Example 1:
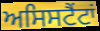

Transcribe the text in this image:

ਅਸਿਸਟੈਂਟਾਂ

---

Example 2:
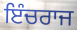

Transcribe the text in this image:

ਇੰਚਰਾਜ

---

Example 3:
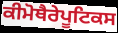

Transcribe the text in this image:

ਕੀਮੋਥੈਰੇਪੂਟਿਕਸ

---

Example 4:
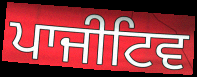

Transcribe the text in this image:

ਪਾਜੀਟਿਵ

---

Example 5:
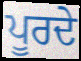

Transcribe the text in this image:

ਪੂਰਦੇ